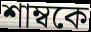
শাম্বকে